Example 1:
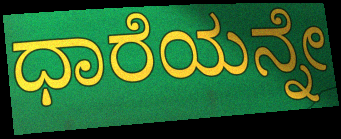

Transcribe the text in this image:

ಧಾರೆಯನ್ನೇ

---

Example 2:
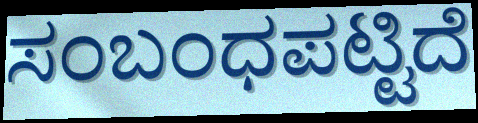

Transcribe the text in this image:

ಸಂಬಂಧಪಟ್ಟಿದೆ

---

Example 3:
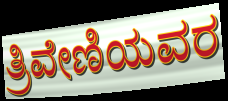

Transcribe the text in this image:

ತ್ರಿವೇಣಿಯವರ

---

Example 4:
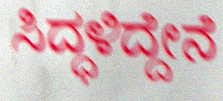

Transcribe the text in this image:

ಸಿದ್ಧಳಿದ್ದೇನೆ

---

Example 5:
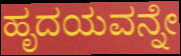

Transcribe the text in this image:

ಹೃದಯವನ್ನೇ